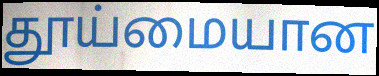
தூய்மையான